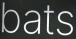
bats